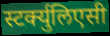
स्टर्क्युलिएसी